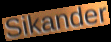
Sikander